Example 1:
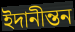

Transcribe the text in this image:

ইদানীন্তন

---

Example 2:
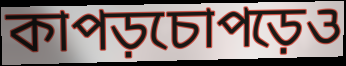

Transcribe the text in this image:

কাপড়চোপড়েও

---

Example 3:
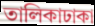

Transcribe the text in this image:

তালিকাঢাকা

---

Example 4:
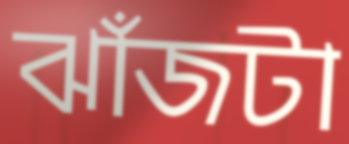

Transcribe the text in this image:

ঝাঁজটা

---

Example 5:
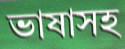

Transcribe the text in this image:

ভাষাসহ